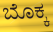
ಬೊಕ್ಕ